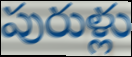
పురుళ్లు